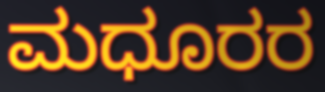
ಮಧೂರರ